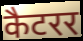
कैटरर